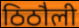
ठिठौली